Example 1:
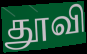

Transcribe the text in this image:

தூவி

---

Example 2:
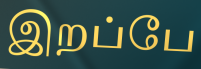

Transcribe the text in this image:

இறப்பே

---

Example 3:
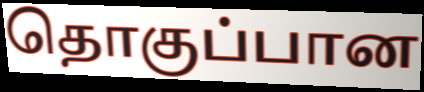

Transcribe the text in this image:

தொகுப்பான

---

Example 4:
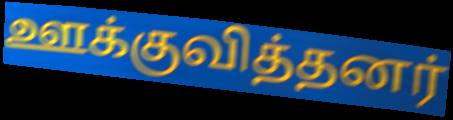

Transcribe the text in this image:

ஊக்குவித்தனர்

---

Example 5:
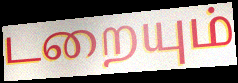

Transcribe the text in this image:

டறையும்